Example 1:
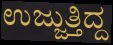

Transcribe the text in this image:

ಉಜ್ಜುತ್ತಿದ್ದ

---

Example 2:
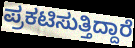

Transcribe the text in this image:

ಪ್ರಕಟಿಸುತ್ತಿದ್ದಾರೆ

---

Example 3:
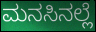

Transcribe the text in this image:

ಮನಸಿನಲ್ಲೆ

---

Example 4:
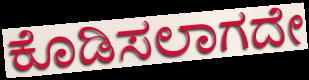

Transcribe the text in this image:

ಕೊಡಿಸಲಾಗದೇ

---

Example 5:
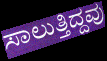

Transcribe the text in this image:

ಸಾಲುತ್ತಿದ್ದವು